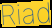
Riad